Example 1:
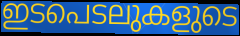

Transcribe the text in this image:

ഇടപെടലുകളുടെ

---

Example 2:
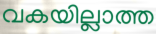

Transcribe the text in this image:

വകയില്ലാത്ത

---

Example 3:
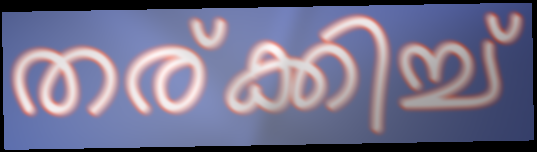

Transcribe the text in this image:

തര്ക്കിച്ച്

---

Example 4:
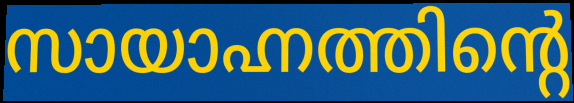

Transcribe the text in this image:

സായാഹ്നത്തിന്റെ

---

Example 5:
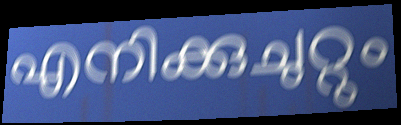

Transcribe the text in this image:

എനിക്കുചുറ്റും